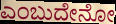
ಎಂಬುದೇನೋ